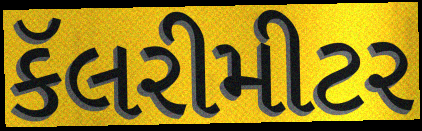
કૅલરીમીટર